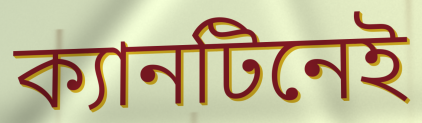
ক্যানটিনেই